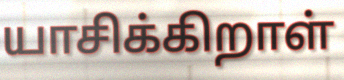
யாசிக்கிறாள்